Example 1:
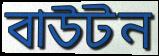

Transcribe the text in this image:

বাউটন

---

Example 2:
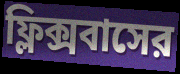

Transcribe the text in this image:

ফ্লিক্সবাসের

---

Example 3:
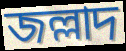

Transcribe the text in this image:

জল্লাদ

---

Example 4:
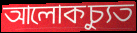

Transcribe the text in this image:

আলোকচ্যুত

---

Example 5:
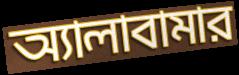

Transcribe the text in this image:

অ্যালাবামার